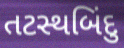
તટસ્થબિંદુ